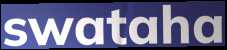
swataha